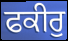
ਫਕੀਰੁ